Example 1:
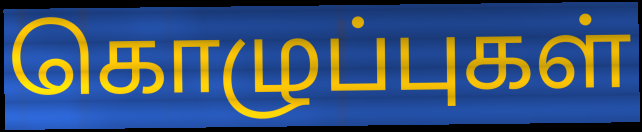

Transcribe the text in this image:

கொழுப்புகள்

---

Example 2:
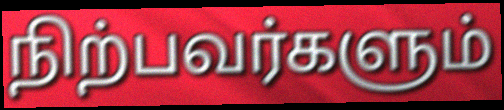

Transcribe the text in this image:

நிற்பவர்களும்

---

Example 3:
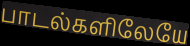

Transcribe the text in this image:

பாடல்களிலேயே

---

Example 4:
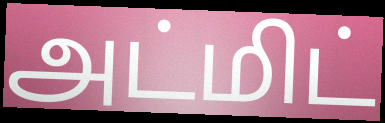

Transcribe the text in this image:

அட்மிட்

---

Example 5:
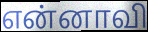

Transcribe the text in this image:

என்னாவி